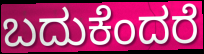
ಬದುಕೆಂದರೆ